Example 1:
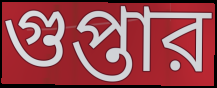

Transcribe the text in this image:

গুপ্তার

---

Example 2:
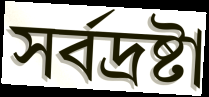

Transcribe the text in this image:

সর্বদ্রষ্টা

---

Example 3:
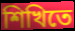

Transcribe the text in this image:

শিখিতে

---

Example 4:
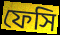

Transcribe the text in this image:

ফেসি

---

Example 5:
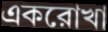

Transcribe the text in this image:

একরোখা